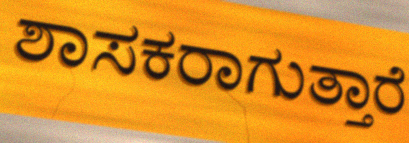
ಶಾಸಕರಾಗುತ್ತಾರೆ